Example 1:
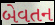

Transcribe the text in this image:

બેવતન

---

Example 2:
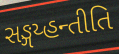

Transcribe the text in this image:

સઙ્ગય્હન્તીતિ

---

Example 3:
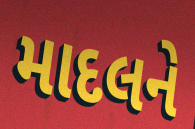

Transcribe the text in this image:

માદલને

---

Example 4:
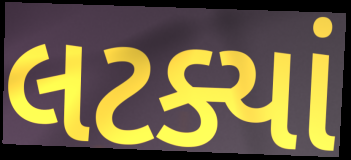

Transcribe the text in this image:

લટક્યાં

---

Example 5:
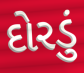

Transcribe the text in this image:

દોરડું